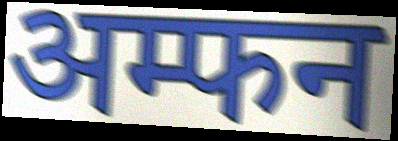
अम्फन